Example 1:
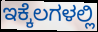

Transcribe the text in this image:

ಇಕ್ಕೆಲಗಳಲ್ಲಿ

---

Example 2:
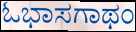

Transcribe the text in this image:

ಓಭಾಸಗಾಥಂ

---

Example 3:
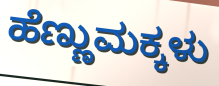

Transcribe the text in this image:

ಹೆಣ್ಣುಮಕ್ಕಳು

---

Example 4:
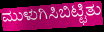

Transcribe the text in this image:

ಮುಳುಗಿಸಿಬಿಟ್ಟಿತು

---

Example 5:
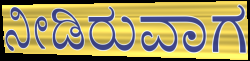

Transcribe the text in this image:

ನೀಡಿರುವಾಗ